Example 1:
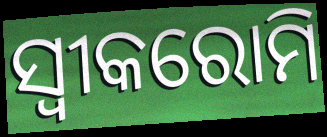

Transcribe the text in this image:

ସ୍ଵୀକରୋମି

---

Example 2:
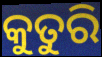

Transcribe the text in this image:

କୁତୁରି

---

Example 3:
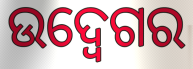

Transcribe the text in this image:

ଉଦ୍ବେଗର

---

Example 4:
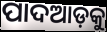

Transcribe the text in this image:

ପାଦଆଡ଼କୁ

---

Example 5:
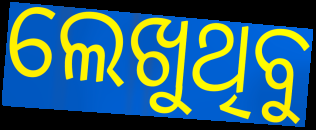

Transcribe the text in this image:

ଲେଖୁଥିବୁ